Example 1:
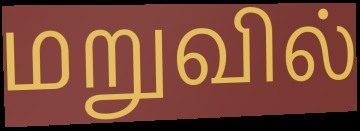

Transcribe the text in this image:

மறுவில்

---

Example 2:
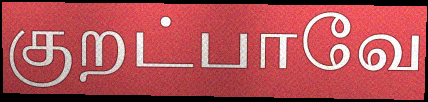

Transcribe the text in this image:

குறட்பாவே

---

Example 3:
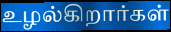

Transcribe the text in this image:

உழல்கிறார்கள்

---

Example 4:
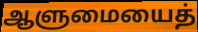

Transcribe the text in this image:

ஆளுமையைத்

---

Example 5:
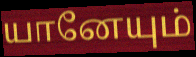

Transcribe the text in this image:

யானேயும்